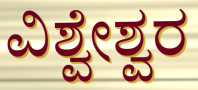
ವಿಶ್ವೇಶ್ವರ